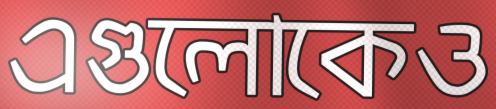
এগুলোকেও